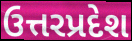
ઉત્તરપ્રદેશ